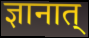
ज्ञानात्